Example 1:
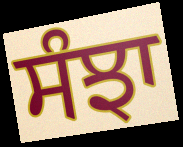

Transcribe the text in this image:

ਸੰਝਾ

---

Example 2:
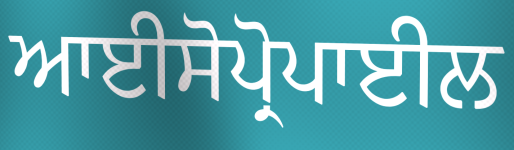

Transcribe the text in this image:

ਆਈਸੋਪ੍ਰੋਪਾਈਲ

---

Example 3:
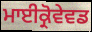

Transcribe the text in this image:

ਮਾਈਕ੍ਰੋਵੇਵਡ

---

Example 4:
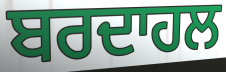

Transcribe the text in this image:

ਬਰਦਾਹਲ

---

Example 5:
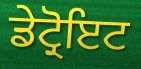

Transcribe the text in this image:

ਡੇਟ੍ਰੋਇਟ